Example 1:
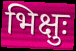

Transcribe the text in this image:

भिक्षुः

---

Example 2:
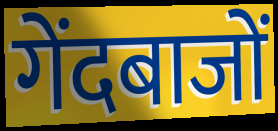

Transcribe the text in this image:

गेंदबाजों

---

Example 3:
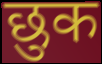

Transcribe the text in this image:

छुक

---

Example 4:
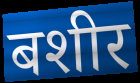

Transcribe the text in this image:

बशीर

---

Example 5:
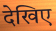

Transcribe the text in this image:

देखिए